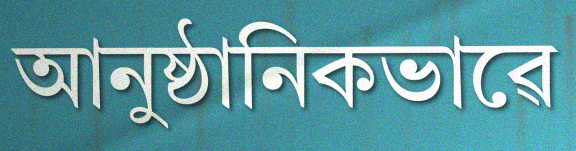
আনুষ্ঠানিকভাৱে